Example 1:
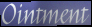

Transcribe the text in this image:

Ointment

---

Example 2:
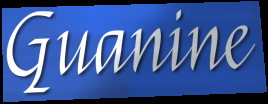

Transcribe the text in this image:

Guanine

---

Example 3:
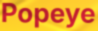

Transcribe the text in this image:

Popeye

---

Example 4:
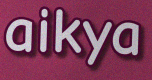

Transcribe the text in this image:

aikya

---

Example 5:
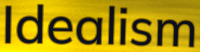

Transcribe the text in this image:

Idealism